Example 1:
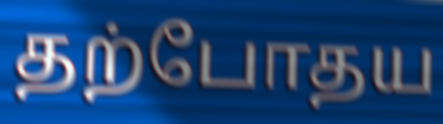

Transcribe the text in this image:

தற்போதய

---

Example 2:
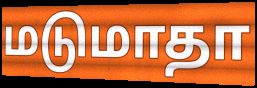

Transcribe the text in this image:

மடுமாதா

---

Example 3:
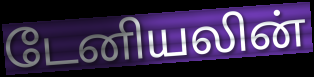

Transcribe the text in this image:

டேனியலின்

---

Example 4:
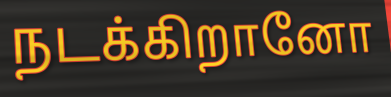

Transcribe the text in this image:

நடக்கிறானோ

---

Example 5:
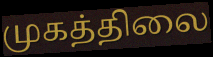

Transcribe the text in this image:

முகத்திலை